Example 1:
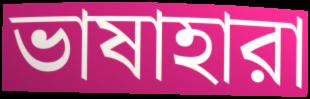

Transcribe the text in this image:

ভাষাহারা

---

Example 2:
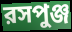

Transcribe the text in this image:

রসপুঞ্জ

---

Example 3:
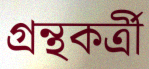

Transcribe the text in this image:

গ্রন্থকর্ত্রী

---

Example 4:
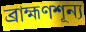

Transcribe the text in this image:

ব্রাহ্মণশূন্য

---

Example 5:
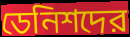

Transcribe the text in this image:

ডেনিশদের